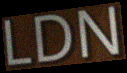
LDN